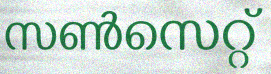
സൺസെറ്റ്